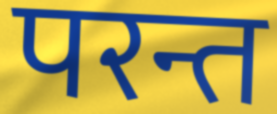
परन्त